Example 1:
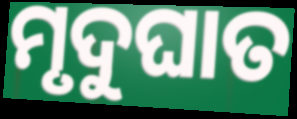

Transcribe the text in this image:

ମୃଦୁଘାତ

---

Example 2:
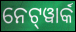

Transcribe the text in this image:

ନେଟ୍‌ୱାର୍କ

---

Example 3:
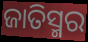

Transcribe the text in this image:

ଜାତିସ୍ମର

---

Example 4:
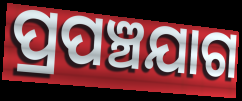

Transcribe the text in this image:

ପ୍ରପଞ୍ଚଯାଗ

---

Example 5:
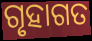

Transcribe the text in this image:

ଗୃହାଗତ